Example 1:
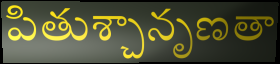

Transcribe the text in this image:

పితుశ్చానృణతా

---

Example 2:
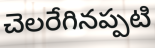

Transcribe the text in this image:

చెలరేగినప్పటి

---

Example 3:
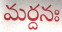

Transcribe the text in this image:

మర్దనః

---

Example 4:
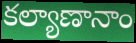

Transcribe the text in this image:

కల్యాణానాం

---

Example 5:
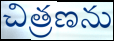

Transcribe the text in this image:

చిత్రణను